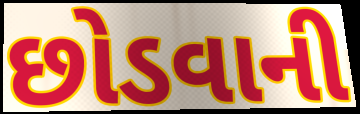
છોડવાની